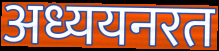
अध्ययनरत